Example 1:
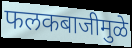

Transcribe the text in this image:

फलकबाजीमुळे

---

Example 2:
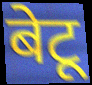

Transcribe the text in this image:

बेटू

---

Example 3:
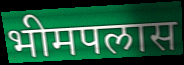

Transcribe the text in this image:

भीमपलास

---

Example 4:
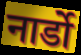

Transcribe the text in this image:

नार्डो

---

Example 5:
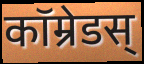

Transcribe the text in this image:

कॉम्रेडस्